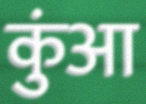
कुंआ